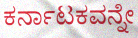
ಕರ್ನಾಟಕವನ್ನೇ